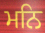
ਮਨਿ